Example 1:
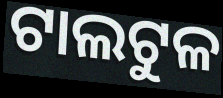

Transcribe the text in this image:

ଟାଲଟୁଳ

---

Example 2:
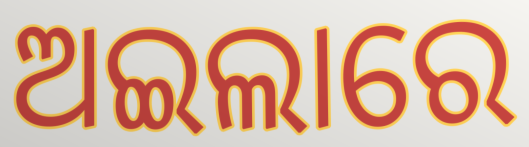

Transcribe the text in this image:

ଅଇଲାରେ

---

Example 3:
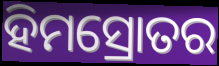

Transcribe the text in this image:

ହିମସ୍ରୋତର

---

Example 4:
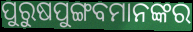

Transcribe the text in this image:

ପୁରୁଷପୁଙ୍ଗବମାନଙ୍କର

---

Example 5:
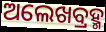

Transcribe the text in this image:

ଅଲେଖବ୍ରହ୍ମ